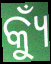
କ୍ୟୁଁ